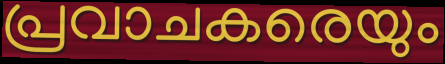
പ്രവാചകരെയും